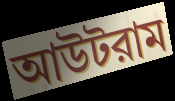
আউটরাম